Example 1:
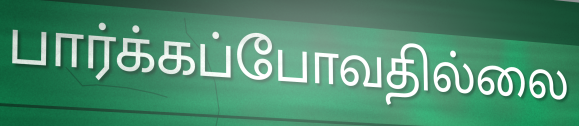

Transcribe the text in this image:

பார்க்கப்போவதில்லை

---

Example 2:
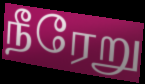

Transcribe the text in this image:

நீரேறு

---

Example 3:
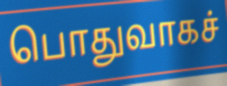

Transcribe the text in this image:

பொதுவாகச்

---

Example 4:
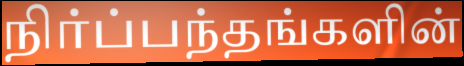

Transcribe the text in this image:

நிர்ப்பந்தங்களின்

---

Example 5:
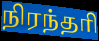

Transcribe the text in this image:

நிரந்தரி